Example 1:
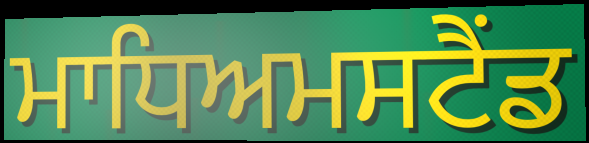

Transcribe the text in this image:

ਮਾਧਿਅਮਸਟੈਂਡ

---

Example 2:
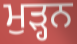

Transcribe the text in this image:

ਮੁੜ੍ਹਨ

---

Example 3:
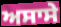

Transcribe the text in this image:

ਅਸਾਸੇ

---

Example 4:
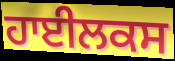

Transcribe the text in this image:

ਹਾਈਲਕਸ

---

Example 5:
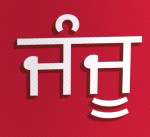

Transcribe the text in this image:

ਜੰਜੂ